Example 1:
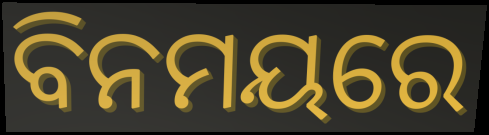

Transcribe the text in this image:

ବିନମୟରେ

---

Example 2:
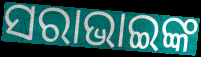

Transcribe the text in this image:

ସରାଭାଇଙ୍କ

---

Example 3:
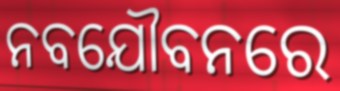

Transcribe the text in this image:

ନବଯୌବନରେ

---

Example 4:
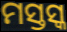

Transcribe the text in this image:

ମସ୍ତସ୍କ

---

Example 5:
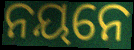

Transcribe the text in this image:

ନୟନେ